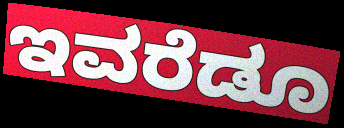
ಇವರೆಡೂ